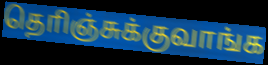
தெரிஞ்சுக்குவாங்க